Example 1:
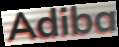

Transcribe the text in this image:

Adiba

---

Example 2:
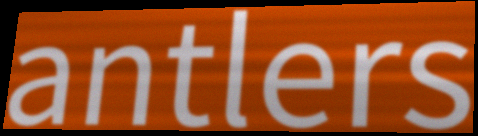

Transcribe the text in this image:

antlers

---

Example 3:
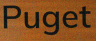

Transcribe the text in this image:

Puget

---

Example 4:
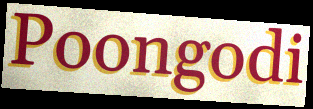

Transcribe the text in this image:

Poongodi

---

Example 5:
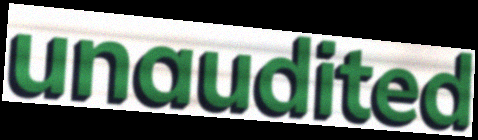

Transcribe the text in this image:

unaudited